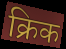
क्रिक